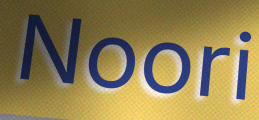
Noori